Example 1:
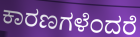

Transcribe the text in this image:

ಕಾರಣಗಳೆಂದರೆ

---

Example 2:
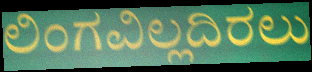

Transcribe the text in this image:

ಲಿಂಗವಿಲ್ಲದಿರಲು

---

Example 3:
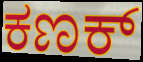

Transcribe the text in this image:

ಕಣಕ್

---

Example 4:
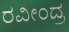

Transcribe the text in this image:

ರವೀಂದ್ರ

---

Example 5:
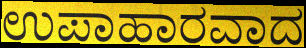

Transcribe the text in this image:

ಉಪಾಹಾರವಾದ